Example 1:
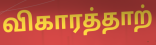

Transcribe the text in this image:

விகாரத்தாற்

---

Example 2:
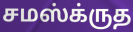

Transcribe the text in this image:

சமஸ்க்ருத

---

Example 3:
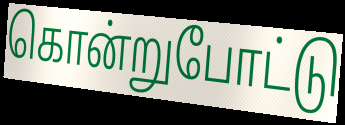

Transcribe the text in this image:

கொன்றுபோட்டு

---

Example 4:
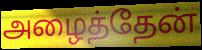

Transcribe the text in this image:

அழைத்தேன்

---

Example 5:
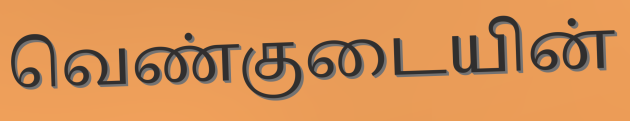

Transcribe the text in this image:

வெண்குடையின்